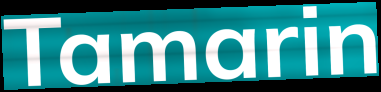
Tamarin